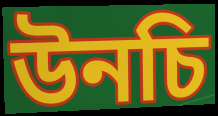
উনচি